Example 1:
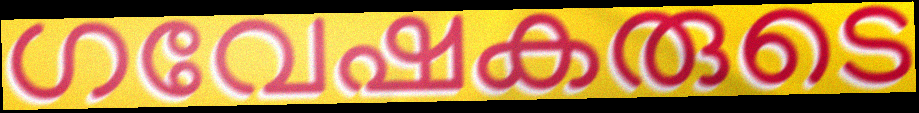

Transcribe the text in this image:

ഗവേഷകരുടെ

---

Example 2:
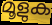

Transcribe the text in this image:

മൂളുക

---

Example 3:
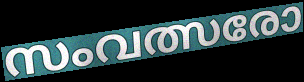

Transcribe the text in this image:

സംവത്സരോ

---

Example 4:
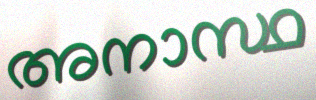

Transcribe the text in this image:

അനാസ്ഥ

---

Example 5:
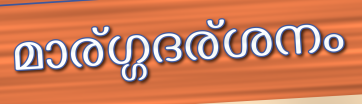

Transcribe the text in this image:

മാര്ഗ്ഗദര്ശനം